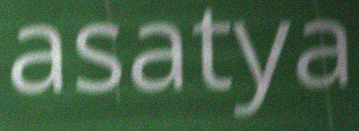
asatya